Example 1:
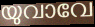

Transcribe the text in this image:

യുവാവേ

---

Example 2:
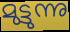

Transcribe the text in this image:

മുട്ടുന്നു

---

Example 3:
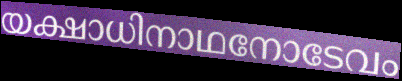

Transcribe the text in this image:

യക്ഷാധിനാഥനോടേവം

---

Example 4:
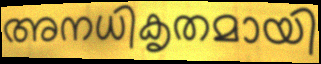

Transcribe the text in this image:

അനധികൃതമായി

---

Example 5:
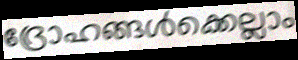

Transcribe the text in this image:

ദ്രോഹങ്ങൾക്കെല്ലാം